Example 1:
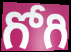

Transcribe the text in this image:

గోగి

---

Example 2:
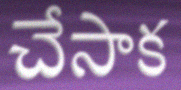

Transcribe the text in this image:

చేసాక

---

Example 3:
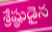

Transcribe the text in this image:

శ్రేష్ఠుడైన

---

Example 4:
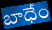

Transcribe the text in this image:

బాధేం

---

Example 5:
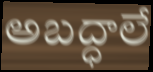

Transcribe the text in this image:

అబద్ధాలే